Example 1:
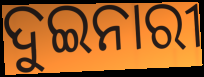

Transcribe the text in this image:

ଦୁଇନାରୀ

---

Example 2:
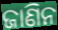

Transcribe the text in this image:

ଜାଣିନ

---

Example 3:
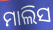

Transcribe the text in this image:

ମାଲିସ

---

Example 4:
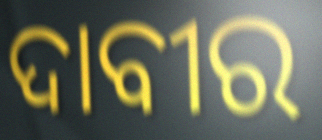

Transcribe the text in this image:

ଦାବୀର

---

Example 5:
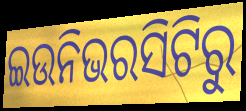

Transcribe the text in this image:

ଇଉନିଭରସିଟିରୁ